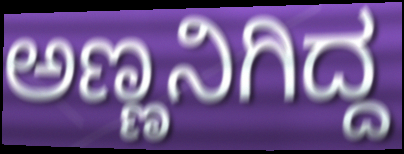
ಅಣ್ಣನಿಗಿದ್ದ